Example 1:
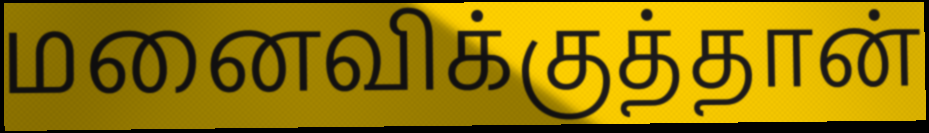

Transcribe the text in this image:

மனைவிக்குத்தான்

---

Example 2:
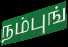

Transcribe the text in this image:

நம்புங்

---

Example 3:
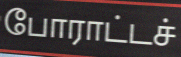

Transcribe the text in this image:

போராட்டச்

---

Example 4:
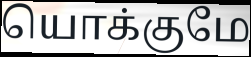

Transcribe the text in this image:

யொக்குமே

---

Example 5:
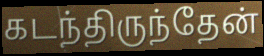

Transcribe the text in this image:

கடந்திருந்தேன்